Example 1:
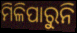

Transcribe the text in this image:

ମିଳିପାରୁନି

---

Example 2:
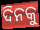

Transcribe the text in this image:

ଦିନକୁ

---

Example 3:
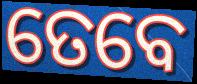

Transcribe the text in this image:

ତେବେ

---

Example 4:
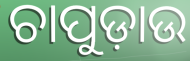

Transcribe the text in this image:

ଚାପୁଡ଼ାଉ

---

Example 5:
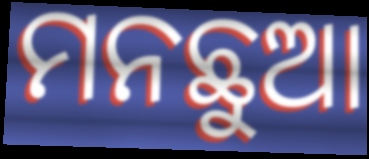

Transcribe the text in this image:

ମନଛୁଆ